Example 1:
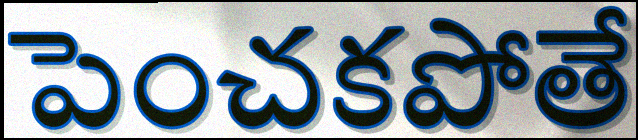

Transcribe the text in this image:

పెంచకపోతే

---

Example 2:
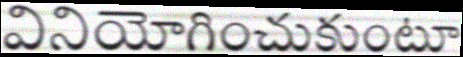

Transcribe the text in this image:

వినియోగించుకుంటూ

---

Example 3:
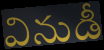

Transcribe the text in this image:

వినుడీ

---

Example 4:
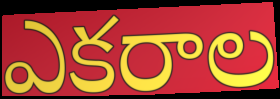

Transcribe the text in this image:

ఎకరాల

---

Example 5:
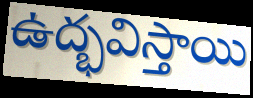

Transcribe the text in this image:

ఉద్భవిస్తాయి